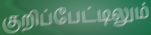
குறிப்பேட்டிலும்